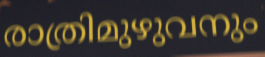
രാത്രിമുഴുവനും